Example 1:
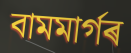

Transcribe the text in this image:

বামমাৰ্গৰ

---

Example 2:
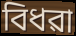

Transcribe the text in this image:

বিধৱা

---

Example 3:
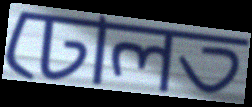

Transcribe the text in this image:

ঢোলত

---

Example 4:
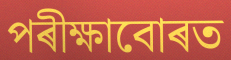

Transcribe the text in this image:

পৰীক্ষাবোৰত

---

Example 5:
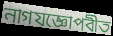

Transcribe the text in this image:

নাগযজ্ঞোপবীত